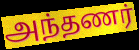
அந்தணர்